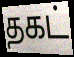
தகட்